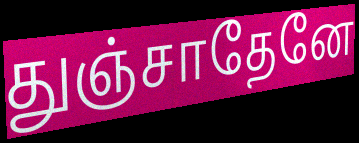
துஞ்சாதேனே